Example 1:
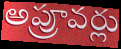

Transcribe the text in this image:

అప్రూవర్లు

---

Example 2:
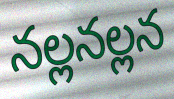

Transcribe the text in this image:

నల్లనల్లన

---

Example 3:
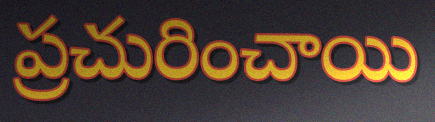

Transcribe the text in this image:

ప్రచురించాయి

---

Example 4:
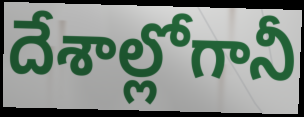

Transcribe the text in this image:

దేశాల్లోగానీ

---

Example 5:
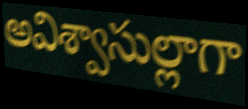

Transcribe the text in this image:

అవిశ్వాసుల్లాగా